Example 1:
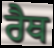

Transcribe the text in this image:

ਰੈਥ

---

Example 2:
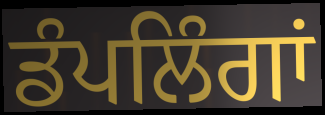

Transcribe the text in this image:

ਡੰਪਲਿੰਗਾਂ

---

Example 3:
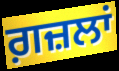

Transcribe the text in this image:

ਗ਼ਜ਼ਲਾਂ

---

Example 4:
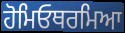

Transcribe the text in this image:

ਹੋਮਿਓਥਰਮਿਆ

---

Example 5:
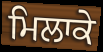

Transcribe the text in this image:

ਮਿਲਾਕੇ